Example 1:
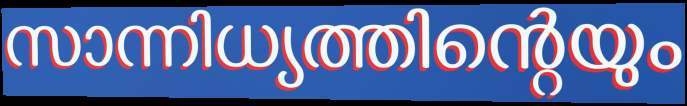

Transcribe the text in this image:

സാന്നിധ്യത്തിന്റെയും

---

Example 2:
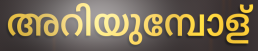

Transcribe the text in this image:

അറിയുമ്പോള്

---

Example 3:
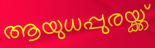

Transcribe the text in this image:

ആയുധപ്പുരയ്ക്ക്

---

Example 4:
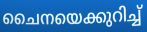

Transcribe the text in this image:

ചൈനയെക്കുറിച്ച്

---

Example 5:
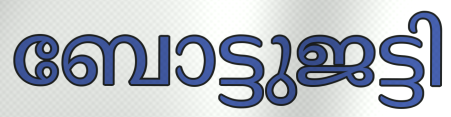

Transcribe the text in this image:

ബോട്ടുജട്ടി